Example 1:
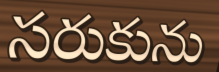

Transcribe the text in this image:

సరుకును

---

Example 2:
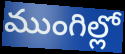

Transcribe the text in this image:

ముంగిల్లో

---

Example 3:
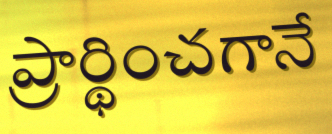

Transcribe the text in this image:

ప్రార్థించగానే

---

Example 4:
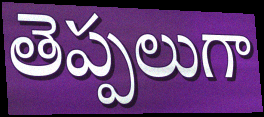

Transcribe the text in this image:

తెప్పలుగా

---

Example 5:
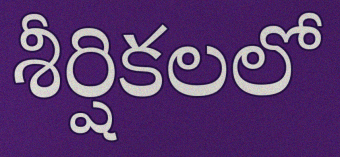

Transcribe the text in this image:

శీర్షికలలో